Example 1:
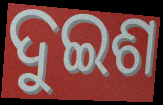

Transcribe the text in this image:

ଦୁଇଶ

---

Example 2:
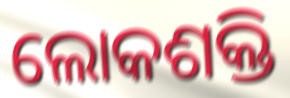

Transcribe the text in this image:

ଲୋକଶକ୍ତି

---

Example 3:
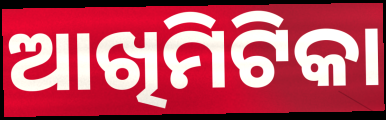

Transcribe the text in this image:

ଆଖିମିଟିକା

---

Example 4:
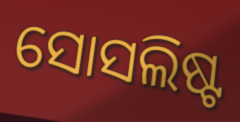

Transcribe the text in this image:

ସୋସଲିଷ୍ଟ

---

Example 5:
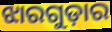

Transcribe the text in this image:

ଝାରଗୁଡ଼ାର